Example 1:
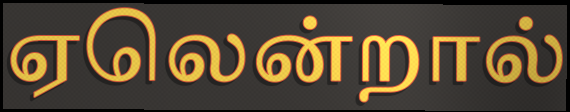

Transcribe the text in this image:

ஏலென்றால்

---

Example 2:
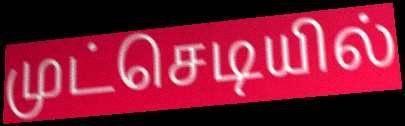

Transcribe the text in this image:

முட்செடியில்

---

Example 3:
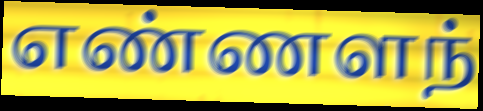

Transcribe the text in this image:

எண்ணளந்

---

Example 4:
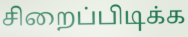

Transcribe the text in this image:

சிறைப்பிடிக்க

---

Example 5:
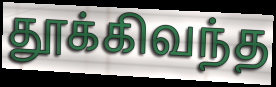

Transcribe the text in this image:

தூக்கிவந்த